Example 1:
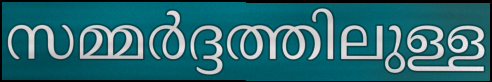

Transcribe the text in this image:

സമ്മർദ്ദത്തിലുള്ള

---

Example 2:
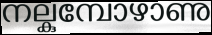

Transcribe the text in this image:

നല്കുമ്പോഴാണു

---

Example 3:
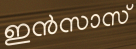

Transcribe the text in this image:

ഇൻസാസ്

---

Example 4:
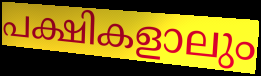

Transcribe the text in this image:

പക്ഷികളാലും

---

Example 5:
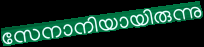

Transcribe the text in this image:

സേനാനിയായിരുന്നു